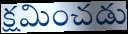
క్షమించడు